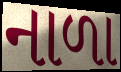
નાળા